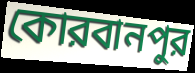
কোরবানপুর